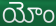
యోం